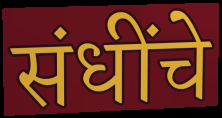
संधींचे